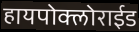
हायपोक्लोराईड